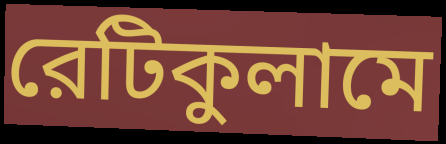
রেটিকুলামে